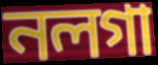
নলগা